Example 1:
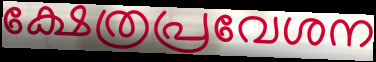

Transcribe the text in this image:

ക്ഷേത്രപ്രവേശന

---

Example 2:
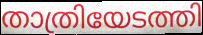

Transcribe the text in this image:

താത്രിയേടത്തി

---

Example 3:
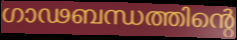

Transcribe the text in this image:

ഗാഢബന്ധത്തിന്റെ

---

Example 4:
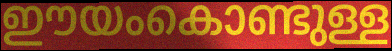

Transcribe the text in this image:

ഈയംകൊണ്ടുള്ള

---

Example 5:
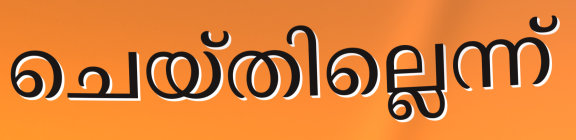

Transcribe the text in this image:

ചെയ്തില്ലെന്ന്